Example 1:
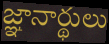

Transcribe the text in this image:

జ్ఞానార్థులు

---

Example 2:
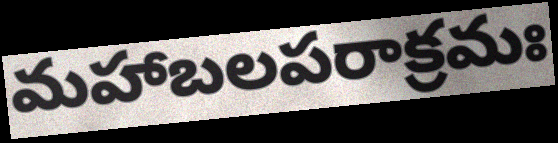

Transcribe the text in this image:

మహాబలపరాక్రమః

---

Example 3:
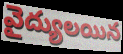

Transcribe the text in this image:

వైద్యులయిన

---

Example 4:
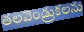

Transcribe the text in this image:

తలవెండ్రుకలను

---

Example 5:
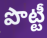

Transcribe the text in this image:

పొట్టీ